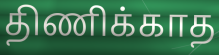
திணிக்காத